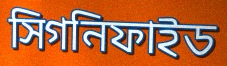
সিগনিফাইড